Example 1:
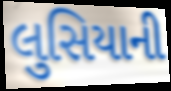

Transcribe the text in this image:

લુસિયાની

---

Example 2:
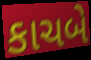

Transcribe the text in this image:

કાચબે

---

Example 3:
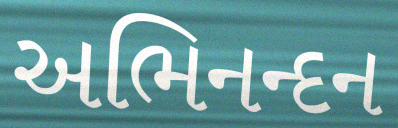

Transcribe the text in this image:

અભિનન્દન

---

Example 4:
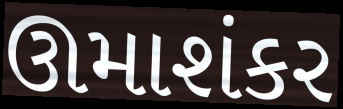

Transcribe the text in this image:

ઊમાશંકર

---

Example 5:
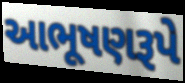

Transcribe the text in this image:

આભૂષણરૂપે